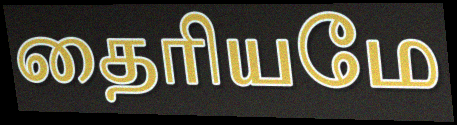
தைரியமே